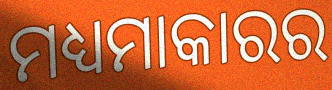
ମଧ୍ୟମାକାରର